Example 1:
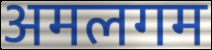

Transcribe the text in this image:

अमलगम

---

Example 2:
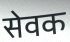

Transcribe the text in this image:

सेवक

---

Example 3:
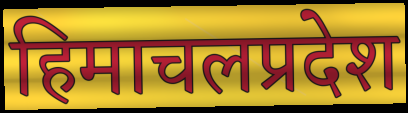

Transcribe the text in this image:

हिमाचलप्रदेश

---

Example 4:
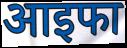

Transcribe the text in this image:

आइफा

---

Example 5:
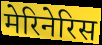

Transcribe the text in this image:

मेरिनेरिस